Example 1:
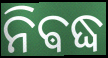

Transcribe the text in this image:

ନିଵଦ୍ଧ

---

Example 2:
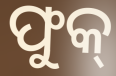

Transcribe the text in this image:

ଫୁକ୍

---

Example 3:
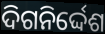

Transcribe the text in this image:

ଦିଗନିର୍ଦ୍ଦେଶ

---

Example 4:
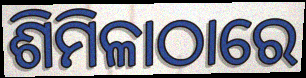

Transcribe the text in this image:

ଶିମିଳାଠାରେ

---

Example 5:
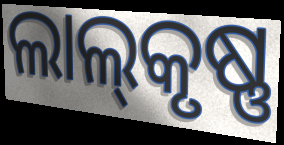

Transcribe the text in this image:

ଲାଲ୍‌କୃଷ୍ଣ